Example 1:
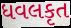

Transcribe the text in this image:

ધવલકૃત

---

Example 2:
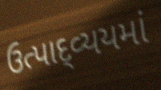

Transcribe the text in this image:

ઉત્પાદ્વ્યયમાં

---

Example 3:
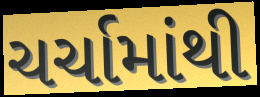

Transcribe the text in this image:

ચર્ચામાંથી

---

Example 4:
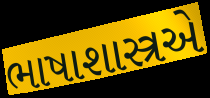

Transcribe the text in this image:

ભાષાશાસ્ત્રએ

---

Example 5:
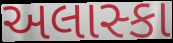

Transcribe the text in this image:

અલાસ્કા